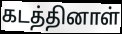
கடத்தினாள்